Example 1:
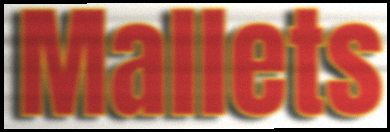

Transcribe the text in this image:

Mallets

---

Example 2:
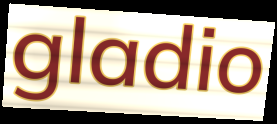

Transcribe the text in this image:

gladio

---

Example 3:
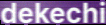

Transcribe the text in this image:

dekechi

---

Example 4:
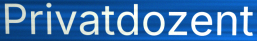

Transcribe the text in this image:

Privatdozent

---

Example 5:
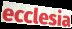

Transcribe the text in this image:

ecclesia